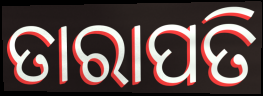
ତାରାପତି